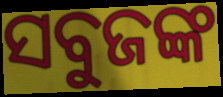
ସବୁଜଙ୍କ